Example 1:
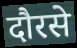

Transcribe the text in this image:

दौरसे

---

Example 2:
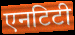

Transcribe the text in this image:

एनटिटी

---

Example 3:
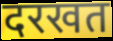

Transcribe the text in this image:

दरखत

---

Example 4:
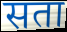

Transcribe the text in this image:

सता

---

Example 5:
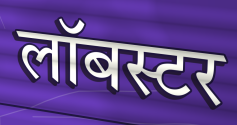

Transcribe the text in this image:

लॉबस्टर